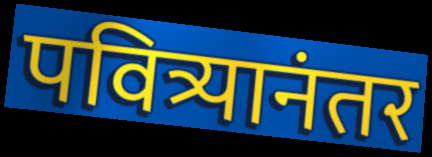
पवित्र्यानंतर